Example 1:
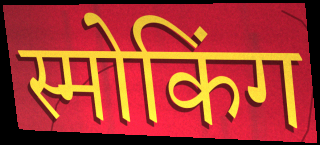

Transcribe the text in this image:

स्मोकिंग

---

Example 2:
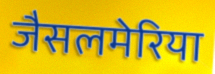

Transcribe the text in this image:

जैसलमेरिया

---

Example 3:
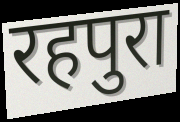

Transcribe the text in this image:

रहपुरा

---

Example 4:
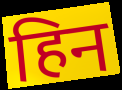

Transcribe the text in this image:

हिन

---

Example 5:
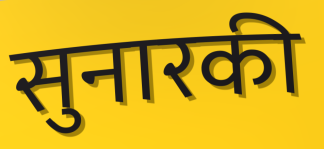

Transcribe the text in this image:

सुनारकी